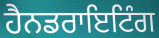
ਹੈਨਡਰਾਇਟਿੰਗ